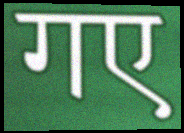
गए